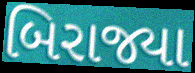
બિરાજ્યા